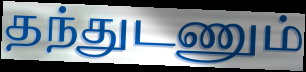
தந்துடணும்